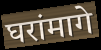
घरांमागे